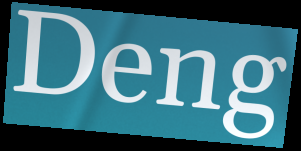
Deng